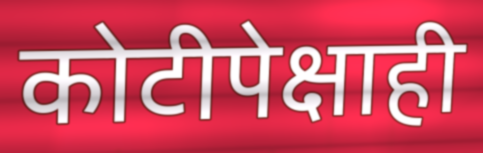
कोटीपेक्षाही